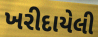
ખરીદાયેલી